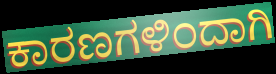
ಕಾರಣಗಳಿಂದಾಗಿ